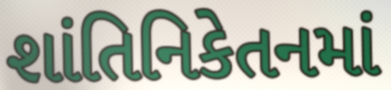
શાંતિનિકેતનમાં